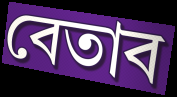
বেতাব